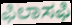
ಫಿಲಾಸಫಿ